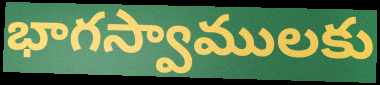
భాగస్వాములకు